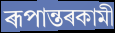
ৰূপান্তৰকামী